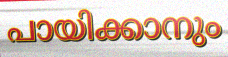
പായിക്കാനും